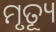
ମୃତ୍ୟୂ